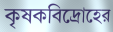
কৃষকবিদ্রোহের